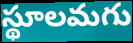
స్థూలమగు